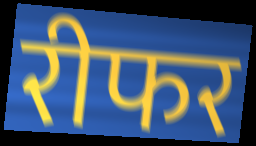
रीफर